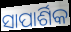
ସାପାର୍ଶିକ